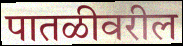
पातळीवरील